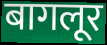
बागलूर